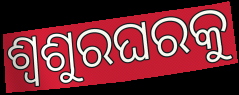
ଶ୍ୱଶୁରଘରକୁ